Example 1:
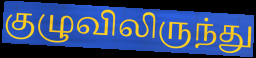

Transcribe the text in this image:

குழுவிலிருந்து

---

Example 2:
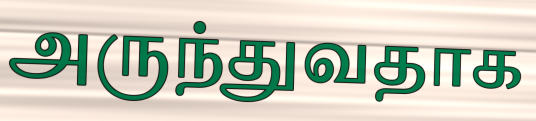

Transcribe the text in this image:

அருந்துவதாக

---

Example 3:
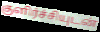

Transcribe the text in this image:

குளிர்ச்சியுடன்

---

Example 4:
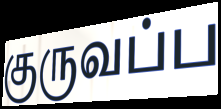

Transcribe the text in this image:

குருவப்ப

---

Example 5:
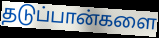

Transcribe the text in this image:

தடுப்பான்களை